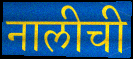
नालीची